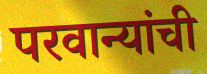
परवान्यांची